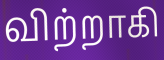
விற்றாகி